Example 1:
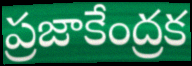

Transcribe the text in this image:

ప్రజాకేంద్రక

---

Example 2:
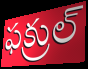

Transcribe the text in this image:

ఫక్రుల్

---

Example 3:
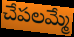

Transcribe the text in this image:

చేపలమ్మే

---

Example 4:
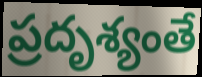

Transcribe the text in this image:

ప్రదృశ్యంతే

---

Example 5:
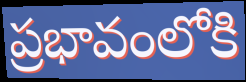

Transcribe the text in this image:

ప్రభావంలోకి